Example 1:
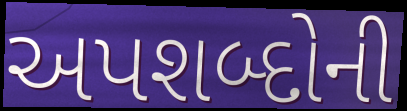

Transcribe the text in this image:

અપશબ્દોની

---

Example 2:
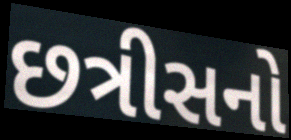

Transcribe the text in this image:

છત્રીસનો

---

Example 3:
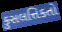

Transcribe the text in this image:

કુસલત્તિકતો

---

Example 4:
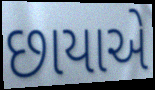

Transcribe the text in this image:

છાયાએ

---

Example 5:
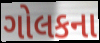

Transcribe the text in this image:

ગોલકના